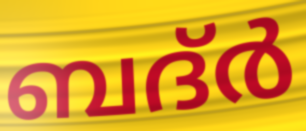
ബദ്ർ